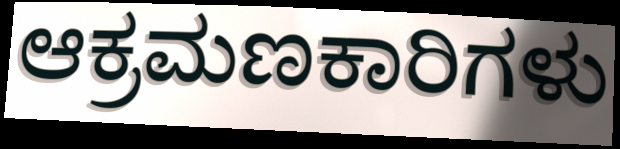
ಆಕ್ರಮಣಕಾರಿಗಳು